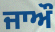
ਜਾਔ